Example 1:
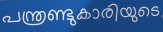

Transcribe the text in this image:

പന്ത്രണ്ടുകാരിയുടെ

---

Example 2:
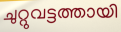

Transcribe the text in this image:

ചുറ്റുവട്ടത്തായി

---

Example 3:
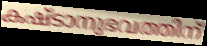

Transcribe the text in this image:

കഷ്ടാനുഭവത്തിന്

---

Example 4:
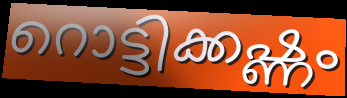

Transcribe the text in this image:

റൊട്ടിക്കഷ്ണം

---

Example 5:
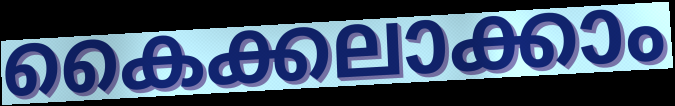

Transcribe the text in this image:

കൈക്കലാക്കാം